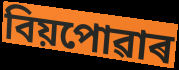
বিয়পোৱাৰ